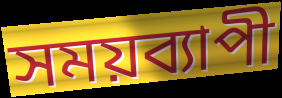
সময়ব্যাপী